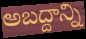
అబద్దాన్ని